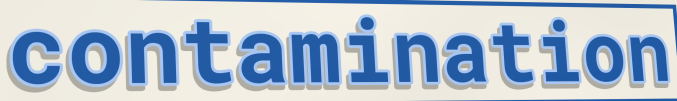
contamination